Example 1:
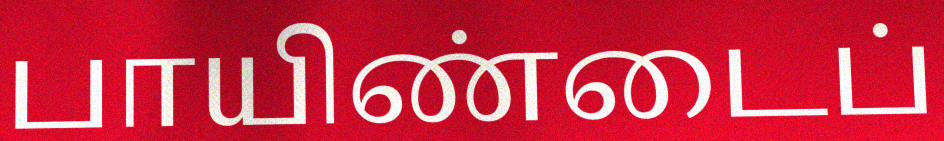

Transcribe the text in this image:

பாயிண்டைப்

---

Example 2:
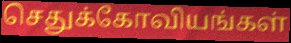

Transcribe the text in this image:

செதுக்கோவியங்கள்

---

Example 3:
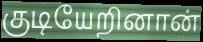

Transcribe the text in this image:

குடியேறினான்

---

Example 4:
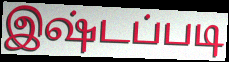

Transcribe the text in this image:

இஷ்டப்படி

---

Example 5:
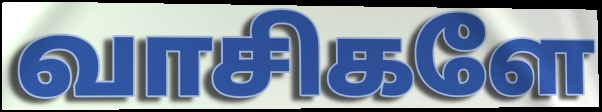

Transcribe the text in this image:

வாசிகளே